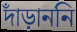
দাঁড়াননি